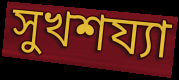
সুখশয্যা